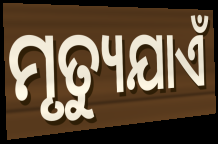
ମୃତ୍ୟୁଯାଏଁ